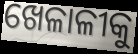
ଖେଳାଳୀକୁ